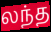
லந்த